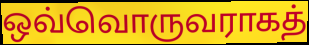
ஒவ்வொருவராகத்